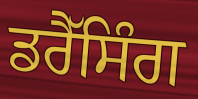
ਡਰੈੱਸਿੰਗ